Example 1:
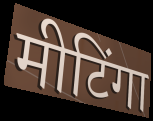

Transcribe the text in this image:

मीटिंगा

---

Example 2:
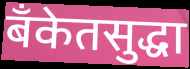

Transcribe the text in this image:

बँकेतसुद्धा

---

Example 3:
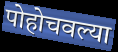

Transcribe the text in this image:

पोहोचवल्या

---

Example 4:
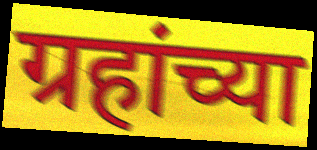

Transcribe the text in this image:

ग्रहांच्या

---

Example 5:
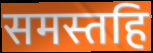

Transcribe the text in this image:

समस्तहि